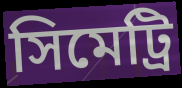
সিমেট্রি